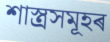
শাস্ত্ৰসমূহৰ